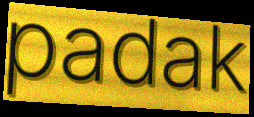
padak